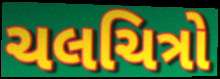
ચલચિત્રો